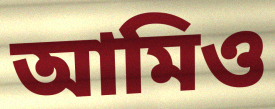
আমিও